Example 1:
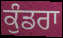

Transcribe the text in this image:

ਕੁੰਡਰਾ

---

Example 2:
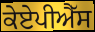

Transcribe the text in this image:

ਕੇਏਪੀਐੱਸ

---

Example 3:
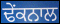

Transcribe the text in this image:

ਢੇਂਕਨਾਲ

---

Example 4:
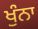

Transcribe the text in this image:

ਖੁੰਨਾ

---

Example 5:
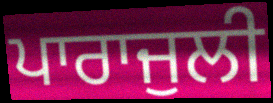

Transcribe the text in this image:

ਪਾਰਾਜੁਲੀ